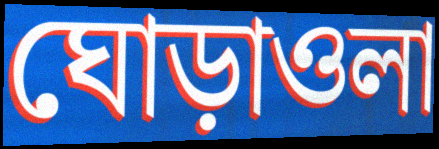
ঘোড়াওলা